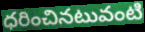
ధరించినటువంటి